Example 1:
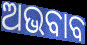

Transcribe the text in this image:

ଅଭବାବ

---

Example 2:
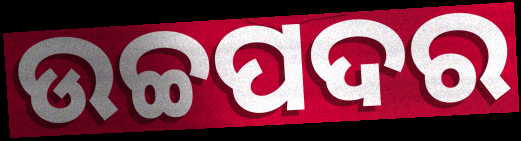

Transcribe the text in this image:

ଉଚ୍ଚପଦର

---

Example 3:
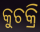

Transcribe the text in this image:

କୁଚକ୍ରି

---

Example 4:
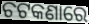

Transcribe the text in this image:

ଚଟକଣାରେ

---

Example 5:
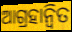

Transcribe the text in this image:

ଆଗ୍ରହାନ୍ୱିତ